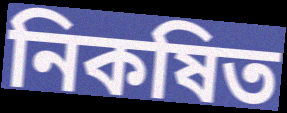
নিকষিত